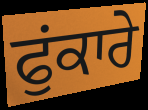
ਫੁਂਕਾਰੇ